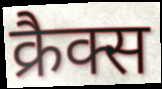
क्रैक्स